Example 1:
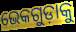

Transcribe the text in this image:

ଭେକଗୁଡ଼ାକୁ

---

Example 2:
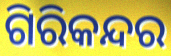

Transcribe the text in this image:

ଗିରିକନ୍ଦର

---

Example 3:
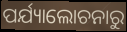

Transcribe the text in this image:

ପର୍ଯ୍ୟାଲୋଚନାରୁ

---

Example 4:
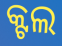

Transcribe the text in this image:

କ୍ଟଲ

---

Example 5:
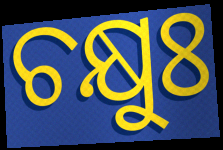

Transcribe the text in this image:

ଚକ୍ଷୁଃ